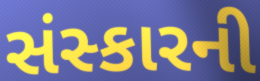
સંસ્કારની